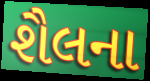
શૈલના